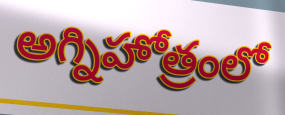
అగ్నిహోత్రంలో